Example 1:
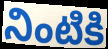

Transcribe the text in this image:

నింటికి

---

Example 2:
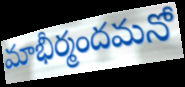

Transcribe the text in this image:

మాభీర్మందమనో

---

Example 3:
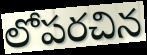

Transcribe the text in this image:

లోపరచిన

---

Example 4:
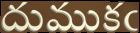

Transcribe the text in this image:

దుముకఁ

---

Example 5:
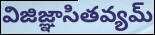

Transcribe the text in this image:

విజిజ్ఞాసితవ్యమ్